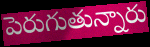
పెరుగుతున్నారు